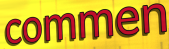
commen